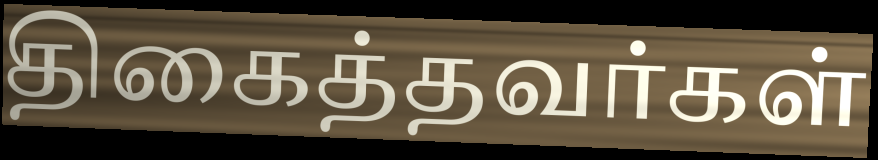
திகைத்தவர்கள்